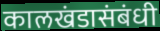
कालखंडासंबंधी